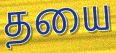
தயை